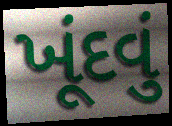
ખૂંદવું